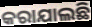
କରାଯାଲଛି